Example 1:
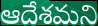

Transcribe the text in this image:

ఆదేశమని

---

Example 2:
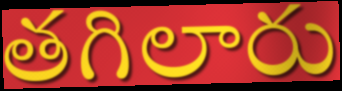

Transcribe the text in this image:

తగిలారు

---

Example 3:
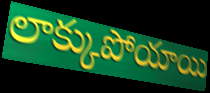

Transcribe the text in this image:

లాక్కుపోయాయి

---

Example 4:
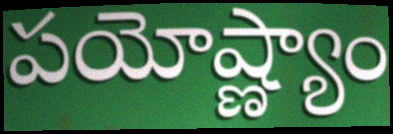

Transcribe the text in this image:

పయోష్ణ్యాం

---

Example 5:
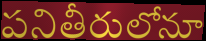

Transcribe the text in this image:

పనితీరులోనూ